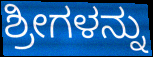
ಶ್ರೀಗಳನ್ನು